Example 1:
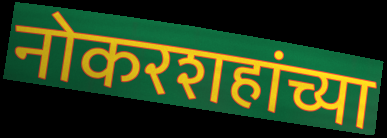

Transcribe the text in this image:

नोकरशहांच्या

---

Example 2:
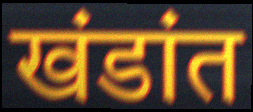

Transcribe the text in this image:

खंडांत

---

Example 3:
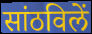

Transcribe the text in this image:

सांठविलें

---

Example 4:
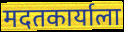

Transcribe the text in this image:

मदतकार्याला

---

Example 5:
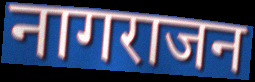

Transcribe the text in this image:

नागराजन